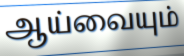
ஆய்வையும்